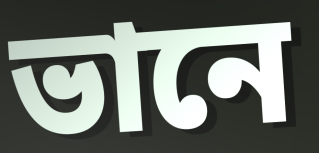
ভানে